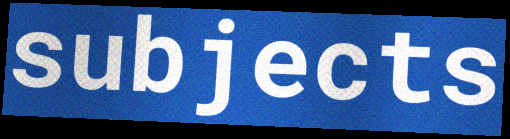
subjects